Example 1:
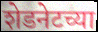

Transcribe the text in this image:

शेडनेटच्या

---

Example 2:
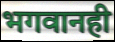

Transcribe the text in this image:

भगवानही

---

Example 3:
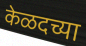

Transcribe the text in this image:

केळदच्या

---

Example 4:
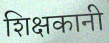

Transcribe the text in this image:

शिक्षकानी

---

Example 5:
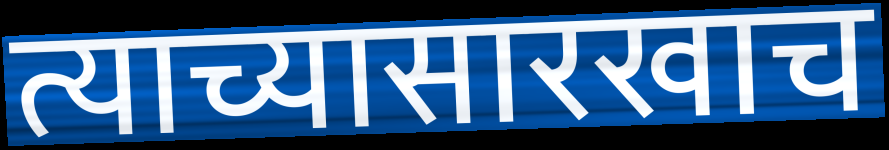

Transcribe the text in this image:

त्याच्यासारखाच